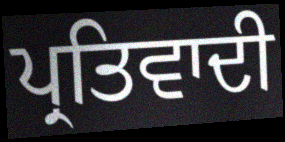
ਪ੍ਰਤਿਵਾਦੀ